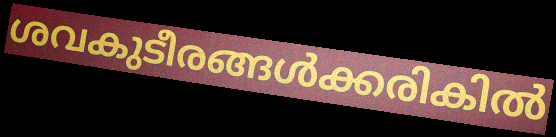
ശവകുടീരങ്ങൾക്കരികിൽ